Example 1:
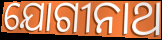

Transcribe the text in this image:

ଯୋଗୀନାଥ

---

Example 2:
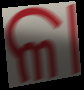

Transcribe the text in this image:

ଳା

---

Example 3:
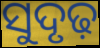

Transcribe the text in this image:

ସୁଦୃଢ଼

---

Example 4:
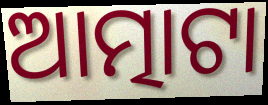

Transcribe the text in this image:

ଆତ୍ମାଟା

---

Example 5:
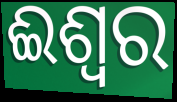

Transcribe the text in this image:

ଈଶ୍ୱର